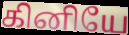
கினியே